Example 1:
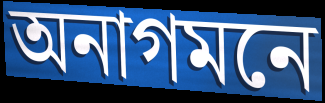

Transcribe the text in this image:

অনাগমনে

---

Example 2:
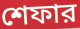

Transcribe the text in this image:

শেফার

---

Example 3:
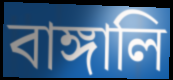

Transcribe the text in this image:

বাঙ্গালি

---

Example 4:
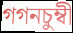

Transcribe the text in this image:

গগনচুম্বী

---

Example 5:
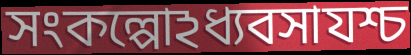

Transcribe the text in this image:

সংকল্পোঽধ্যবসাযশ্চ